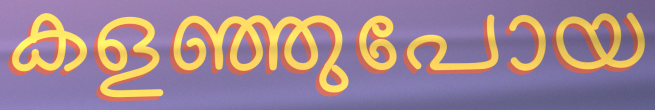
കളഞ്ഞുപോയ